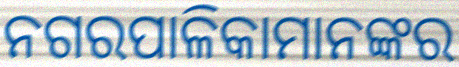
ନଗରପାଳିକାମାନଙ୍କର